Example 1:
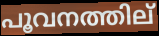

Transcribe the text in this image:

പൂവനത്തില്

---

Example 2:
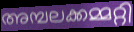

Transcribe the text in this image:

അമ്പലക്കമ്മറ്റി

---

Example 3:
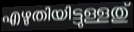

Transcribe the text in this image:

എഴുതിയിട്ടുള്ളതു്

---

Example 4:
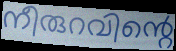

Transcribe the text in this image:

നീരുറവിന്റെ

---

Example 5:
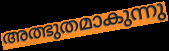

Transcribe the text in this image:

അത്ഭുതമാകുന്നു